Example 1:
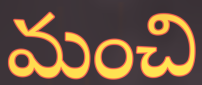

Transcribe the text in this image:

మంచి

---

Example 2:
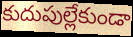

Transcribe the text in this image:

కుదుపుల్లేకుండా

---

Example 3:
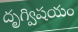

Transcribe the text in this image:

దృగ్విషయం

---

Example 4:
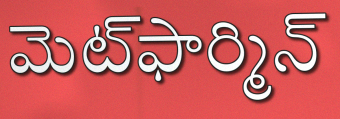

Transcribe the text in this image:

మెట్‌ఫార్మిన్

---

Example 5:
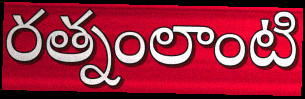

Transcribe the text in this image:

రత్నంలాంటి